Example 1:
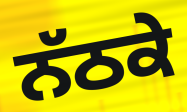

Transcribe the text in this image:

ਨੱਠਕੇ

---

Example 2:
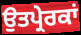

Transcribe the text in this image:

ਉਤਪ੍ਰੇਰਕਾਂ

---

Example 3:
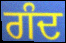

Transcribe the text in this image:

ਗੰਦ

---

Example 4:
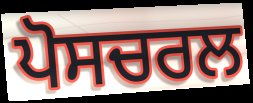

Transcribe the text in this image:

ਪੋਸਚਰਲ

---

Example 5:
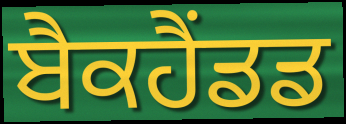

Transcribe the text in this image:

ਬੈਕਹੈਂਡਡ